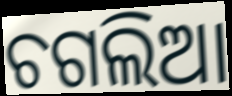
ଚଗଲିଆ